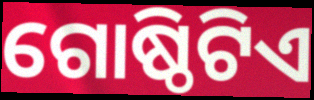
ଗୋଷ୍ଠିଟିଏ